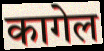
कागेल